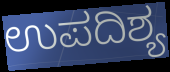
ಉಪದಿಶ್ಯ